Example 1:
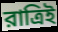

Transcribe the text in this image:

রাত্রিই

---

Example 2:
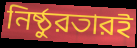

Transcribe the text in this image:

নিষ্ঠুরতারই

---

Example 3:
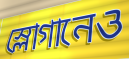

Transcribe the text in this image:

স্লোগানেও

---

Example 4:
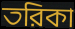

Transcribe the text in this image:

তরিকা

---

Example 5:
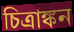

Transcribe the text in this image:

চিত্রাঙ্কন